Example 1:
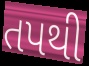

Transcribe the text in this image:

તપથી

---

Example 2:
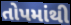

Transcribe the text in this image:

તોપમાંથી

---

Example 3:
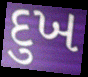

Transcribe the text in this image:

દુખ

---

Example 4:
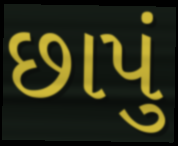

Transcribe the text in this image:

છાપું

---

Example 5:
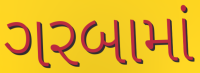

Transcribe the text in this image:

ગરબામાં